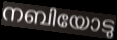
നബിയോടു